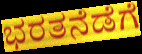
ಭರತನೆಡೆಗೆ